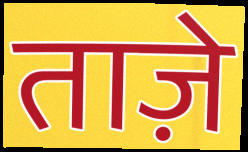
ताज़े